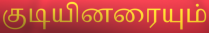
குடியினரையும்